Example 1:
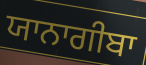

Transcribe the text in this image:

ਯਾਨਾਗੀਬਾ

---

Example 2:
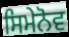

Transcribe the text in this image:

ਸਿਮੇਨੋਵ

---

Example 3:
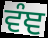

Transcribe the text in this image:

ਵੰਞ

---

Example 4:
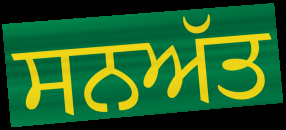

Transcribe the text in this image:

ਸਨਅੱਤ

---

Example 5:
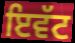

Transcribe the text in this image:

ਇਵੱਟ